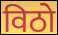
विठो